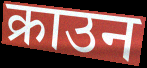
क्राउन